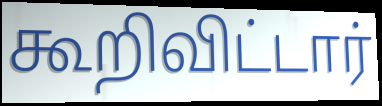
கூறிவிட்டார்